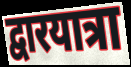
द्वारयात्रा